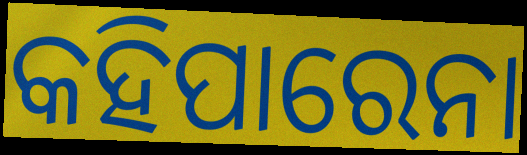
କହିପାରେନା